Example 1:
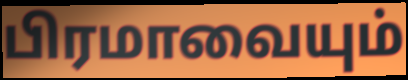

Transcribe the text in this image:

பிரமாவையும்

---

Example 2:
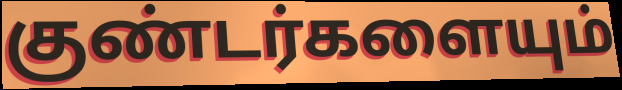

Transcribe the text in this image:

குண்டர்களையும்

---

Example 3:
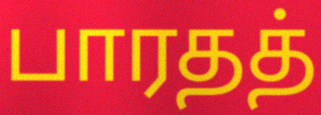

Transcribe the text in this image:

பாரதத்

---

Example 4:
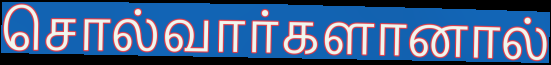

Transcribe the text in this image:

சொல்வார்களானால்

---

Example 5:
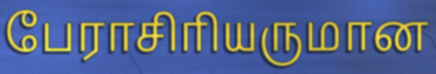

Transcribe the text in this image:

பேராசிரியருமான